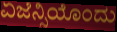
ಏಜೆನ್ಸಿಯೊಂದು